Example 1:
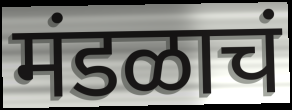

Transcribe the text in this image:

मंडळाचं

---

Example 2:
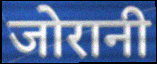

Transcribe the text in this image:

जोरानी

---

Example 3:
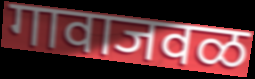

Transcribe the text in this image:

गावाजवळ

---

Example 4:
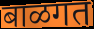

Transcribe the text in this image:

बाळगत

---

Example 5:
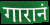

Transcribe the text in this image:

गारानं